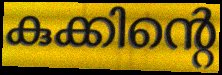
കുക്കിന്റെ